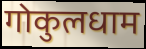
गोकुलधाम